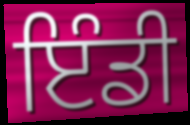
ਇੰਡੀ